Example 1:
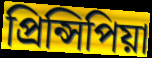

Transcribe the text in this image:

প্ৰিন্সিপিয়া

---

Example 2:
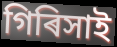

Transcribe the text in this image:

গিৰিসাই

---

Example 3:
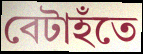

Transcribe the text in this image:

বেটাহঁতে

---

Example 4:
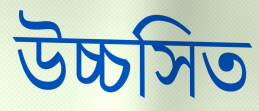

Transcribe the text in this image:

উচ্চসিত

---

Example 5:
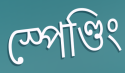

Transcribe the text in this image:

স্পেণ্ডিং